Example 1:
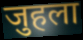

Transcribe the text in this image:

जुहला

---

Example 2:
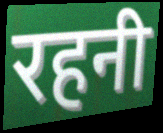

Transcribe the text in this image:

रहनी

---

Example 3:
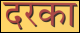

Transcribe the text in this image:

दरका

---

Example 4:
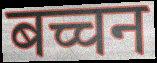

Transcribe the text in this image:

बच्चन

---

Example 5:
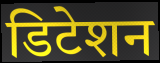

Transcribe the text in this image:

डिटेशन